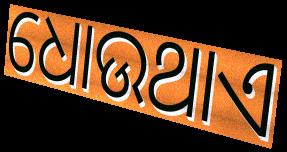
ଧୋଉଥାଏ